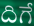
దిగే